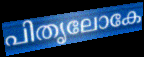
പിതൃലോകേ